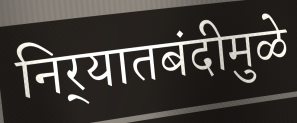
निर्यातबंदीमुळे